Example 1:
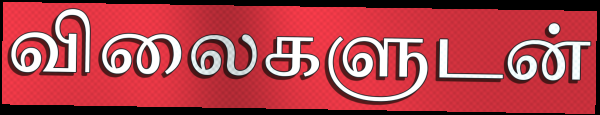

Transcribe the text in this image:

விலைகளுடன்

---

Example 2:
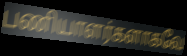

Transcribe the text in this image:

பணியாளர்களாகவே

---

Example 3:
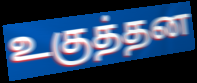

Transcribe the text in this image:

உகுத்தன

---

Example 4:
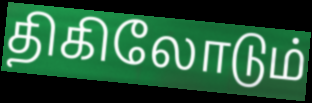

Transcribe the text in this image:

திகிலோடும்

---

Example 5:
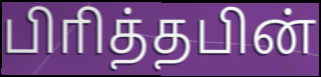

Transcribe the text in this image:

பிரித்தபின்